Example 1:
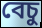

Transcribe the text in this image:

বেচু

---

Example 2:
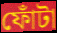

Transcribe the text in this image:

ফোঁটা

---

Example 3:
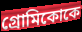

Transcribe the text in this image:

গ্রোমিকোকে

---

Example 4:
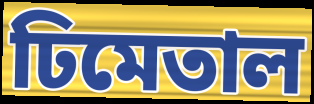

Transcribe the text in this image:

ঢিমেতাল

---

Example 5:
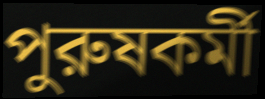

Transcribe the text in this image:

পুরুষকর্মী